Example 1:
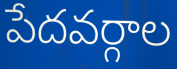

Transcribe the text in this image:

పేదవర్గాల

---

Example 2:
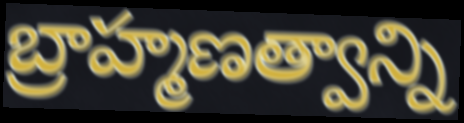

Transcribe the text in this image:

బ్రాహ్మణత్వాన్ని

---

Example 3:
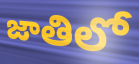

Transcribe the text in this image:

జాతిలో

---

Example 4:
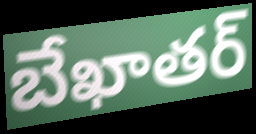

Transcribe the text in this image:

బేఖాతర్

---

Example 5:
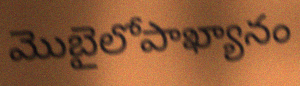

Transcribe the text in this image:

మొబైలోపాఖ్యానం